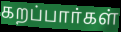
கறப்பார்கள்